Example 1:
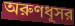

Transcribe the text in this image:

অরুণধূসর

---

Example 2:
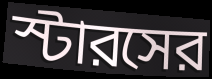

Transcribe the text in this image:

স্টারসের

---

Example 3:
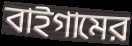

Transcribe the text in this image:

বাইগামের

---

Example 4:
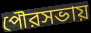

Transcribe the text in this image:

পৌরসভায়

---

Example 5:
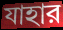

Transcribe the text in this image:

যাহার